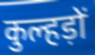
कुल्हड़ों